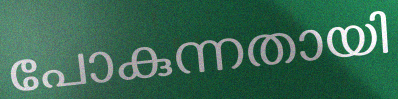
പോകുന്നതായി